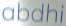
abdhi